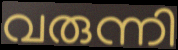
വരുന്നി